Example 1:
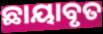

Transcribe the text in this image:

ଛାୟାବୃତ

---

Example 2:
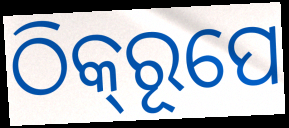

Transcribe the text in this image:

ଠିକ୍‌ରୂପେ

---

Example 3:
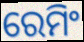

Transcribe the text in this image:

ରେମିଂ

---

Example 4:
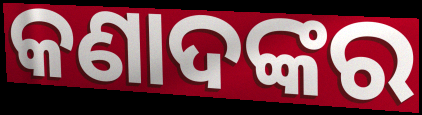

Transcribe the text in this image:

କଣାଦଙ୍କର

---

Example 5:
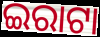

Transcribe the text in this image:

ଇରାଟା